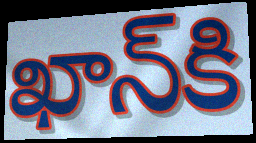
ఖాన్‌కి